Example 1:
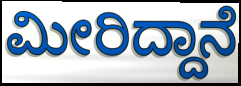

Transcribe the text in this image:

ಮೀರಿದ್ದಾನೆ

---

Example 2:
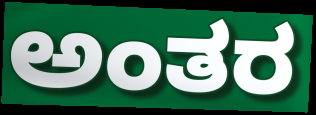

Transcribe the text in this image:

ಅಂತರ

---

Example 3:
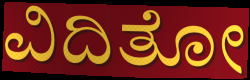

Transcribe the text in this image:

ವಿದಿತೋ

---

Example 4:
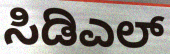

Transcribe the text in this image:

ಸಿಡಿಎಲ್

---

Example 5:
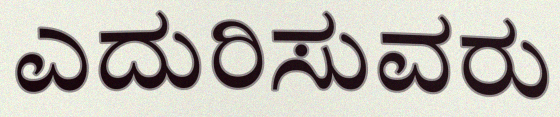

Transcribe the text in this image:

ಎದುರಿಸುವರು